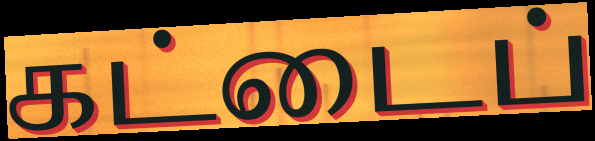
கட்டைப்